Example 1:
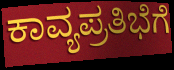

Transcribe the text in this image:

ಕಾವ್ಯಪ್ರತಿಭೆಗೆ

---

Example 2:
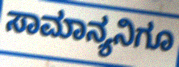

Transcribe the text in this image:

ಸಾಮಾನ್ಯನಿಗೂ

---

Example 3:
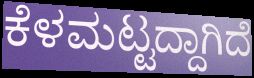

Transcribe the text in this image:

ಕೆಳಮಟ್ಟದ್ದಾಗಿದೆ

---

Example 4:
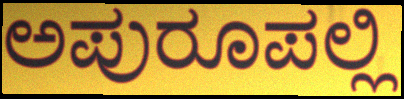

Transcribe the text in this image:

ಅಪುರೂಪಲ್ಲಿ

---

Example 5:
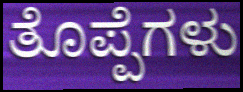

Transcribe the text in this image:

ತೊಪ್ಪೆಗಳು